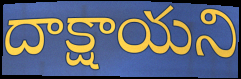
దాక్షాయని